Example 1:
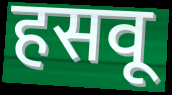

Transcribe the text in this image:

हसवू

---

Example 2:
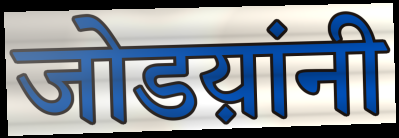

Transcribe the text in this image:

जोडय़ांनी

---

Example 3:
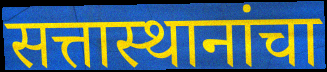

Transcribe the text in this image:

सत्तास्थानांचा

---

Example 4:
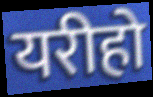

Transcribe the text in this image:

यरीहो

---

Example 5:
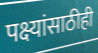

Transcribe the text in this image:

पक्ष्यांसाठीही